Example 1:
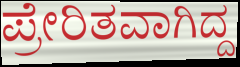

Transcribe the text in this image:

ಪ್ರೇರಿತವಾಗಿದ್ದ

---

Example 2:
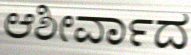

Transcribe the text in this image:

ಆಶೀರ್ವಾದ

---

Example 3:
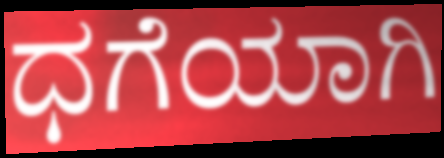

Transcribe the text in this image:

ಧಗೆಯಾಗಿ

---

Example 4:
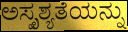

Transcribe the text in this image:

ಅಸ್ಪೃಶ್ಯತೆಯನ್ನು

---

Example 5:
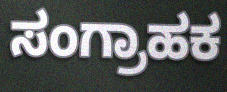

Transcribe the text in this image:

ಸಂಗ್ರಾಹಕ